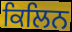
ਕਿਲਿਨ